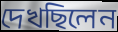
দেখছিলেন